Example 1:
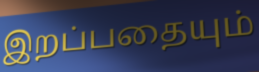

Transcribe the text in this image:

இறப்பதையும்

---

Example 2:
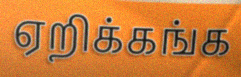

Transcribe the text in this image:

ஏறிக்கங்க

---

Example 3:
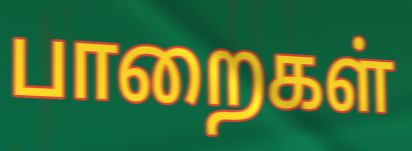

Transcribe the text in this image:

பாறைகள்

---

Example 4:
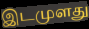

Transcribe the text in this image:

இடமுளது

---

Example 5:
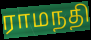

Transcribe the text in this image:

ராமநதி